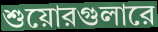
শুয়োরগুলারে